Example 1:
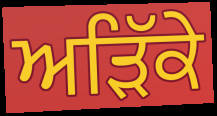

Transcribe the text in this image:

ਅੜਿੱਕੇ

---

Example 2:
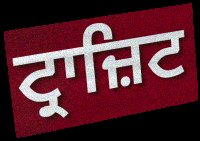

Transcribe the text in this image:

ਟ੍ਰਾਜ਼ਿਟ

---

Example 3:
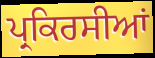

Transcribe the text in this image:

ਪ੍ਰਕਿਰਸੀਆਂ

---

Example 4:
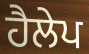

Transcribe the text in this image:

ਹੈਲੇਪ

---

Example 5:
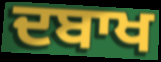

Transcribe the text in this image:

ਦਬਾਖ